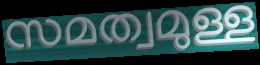
സമത്വമുള്ള